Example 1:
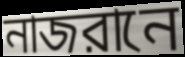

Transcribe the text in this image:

নাজরানে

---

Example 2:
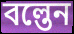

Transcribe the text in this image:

বল্তেন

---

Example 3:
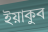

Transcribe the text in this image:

ইয়াকুব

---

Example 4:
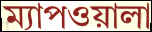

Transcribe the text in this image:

ম্যাপওয়ালা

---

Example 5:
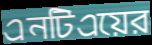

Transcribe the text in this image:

এনটিএয়ের